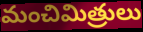
మంచిమిత్రులు